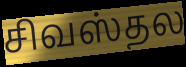
சிவஸ்தல